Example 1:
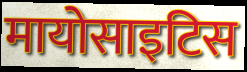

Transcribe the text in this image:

मायोसाइटिस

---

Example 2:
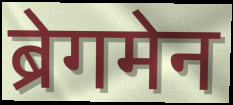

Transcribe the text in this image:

ब्रेगमेन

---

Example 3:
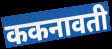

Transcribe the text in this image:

ककनावती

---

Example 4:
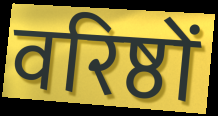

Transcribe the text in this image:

वरिष्ठों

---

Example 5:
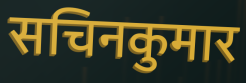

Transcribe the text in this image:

सचिनकुमार